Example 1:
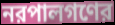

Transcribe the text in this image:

নরপালগণের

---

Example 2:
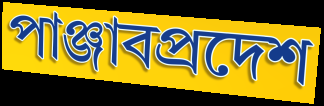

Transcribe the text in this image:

পাঞ্জাবপ্রদেশ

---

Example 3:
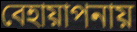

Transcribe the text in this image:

বেহায়াপনায়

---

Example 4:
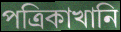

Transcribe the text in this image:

পত্রিকাখানি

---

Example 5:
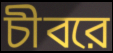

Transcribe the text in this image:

চীবরে